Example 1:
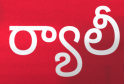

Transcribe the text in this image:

ర్యాలీ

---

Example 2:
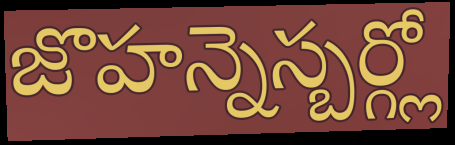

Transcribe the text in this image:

జొహన్నెస్బర్గ్లో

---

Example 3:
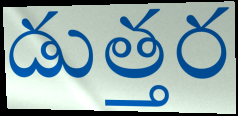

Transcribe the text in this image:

డుత్తర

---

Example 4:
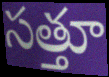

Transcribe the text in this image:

సత్తూ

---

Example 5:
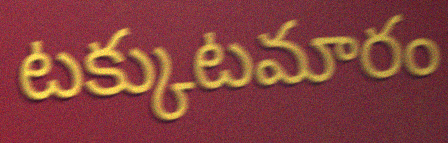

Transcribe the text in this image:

టక్కుటమారం